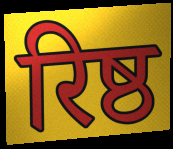
रिष्ठ